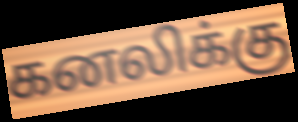
கனலிக்கு